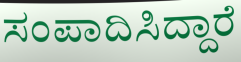
ಸಂಪಾದಿಸಿದ್ದಾರೆ